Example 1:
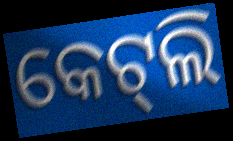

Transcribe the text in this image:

କେଟ୍‍ଲି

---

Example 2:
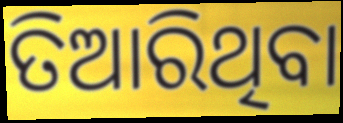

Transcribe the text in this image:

ତିଆରିଥିବା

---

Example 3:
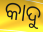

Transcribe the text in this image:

କାଦୁ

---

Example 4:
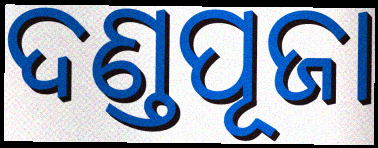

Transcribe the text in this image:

ଦଣ୍ଡପୂଜା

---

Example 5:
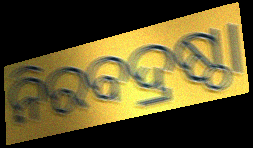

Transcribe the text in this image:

ନିରବଦ୍ରଷ୍ଠା